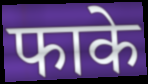
फाके